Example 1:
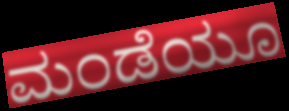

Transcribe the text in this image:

ಮಂಡೆಯೂ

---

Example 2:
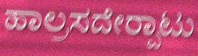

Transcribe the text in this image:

ಹಾಲ್ರಸದೇರ‍್ಪಾಟು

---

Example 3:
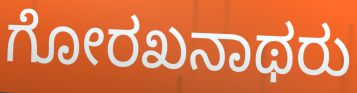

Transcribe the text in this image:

ಗೋರಖನಾಥರು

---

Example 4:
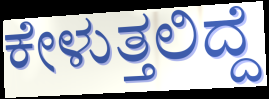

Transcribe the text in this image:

ಕೇಳುತ್ತಲಿದ್ದೆ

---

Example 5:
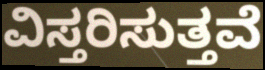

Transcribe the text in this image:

ವಿಸ್ತರಿಸುತ್ತವೆ